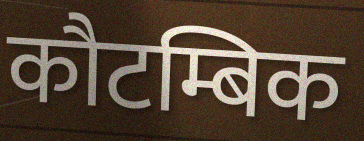
कौटम्बिक